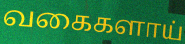
வகைகளாய்